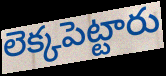
లెక్కపెట్టారు